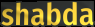
shabda